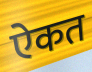
ऐकत